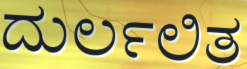
ದುರ್ಲಲಿತ